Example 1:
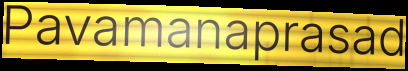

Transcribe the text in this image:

Pavamanaprasad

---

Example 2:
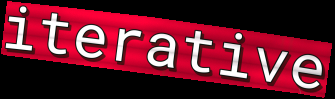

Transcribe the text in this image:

iterative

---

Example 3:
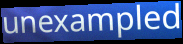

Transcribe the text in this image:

unexampled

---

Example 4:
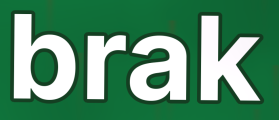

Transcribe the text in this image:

brak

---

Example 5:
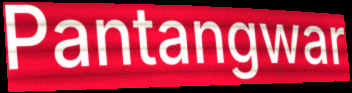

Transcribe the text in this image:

Pantangwar